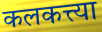
कलकत्त्या